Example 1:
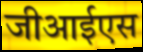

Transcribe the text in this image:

जीआईएस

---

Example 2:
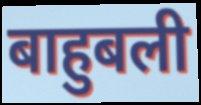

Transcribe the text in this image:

बाहुबली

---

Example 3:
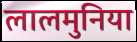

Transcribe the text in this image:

लालमुनिया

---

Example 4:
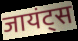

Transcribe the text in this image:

जायंट्स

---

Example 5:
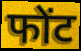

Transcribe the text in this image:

फोंट